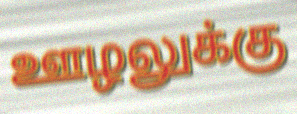
ஊழலுக்கு